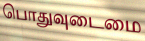
பொதுவுடைமை